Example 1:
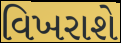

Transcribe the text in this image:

વિખરાશે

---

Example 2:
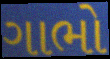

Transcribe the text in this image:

ગાભો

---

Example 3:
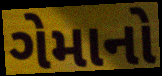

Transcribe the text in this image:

ગેમાનો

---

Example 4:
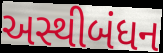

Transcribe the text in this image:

અસ્થીબંધન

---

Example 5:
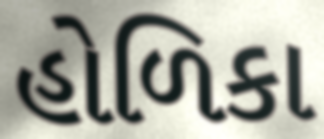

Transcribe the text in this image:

હોળિકા